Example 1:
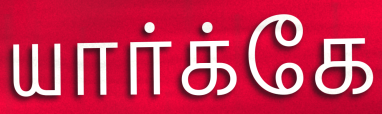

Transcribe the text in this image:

யார்க்கே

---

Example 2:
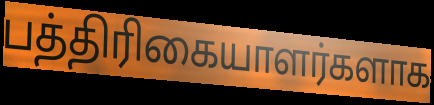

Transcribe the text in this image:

பத்திரிகையாளர்களாக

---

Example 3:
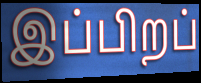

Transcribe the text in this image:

இப்பிறப்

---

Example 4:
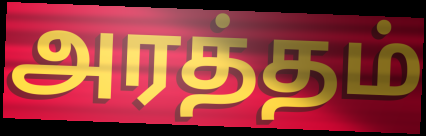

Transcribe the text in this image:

அரத்தம்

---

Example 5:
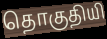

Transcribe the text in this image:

தொகுதியி